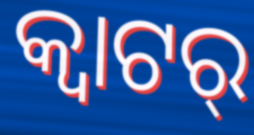
କ୍ୱାଟର୍